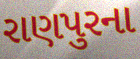
રાણપુરના